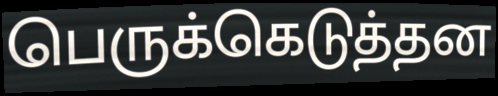
பெருக்கெடுத்தன